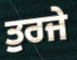
ਤੁਰਜੇ